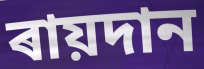
ৰায়দান